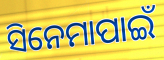
ସିନେମାପାଇଁ